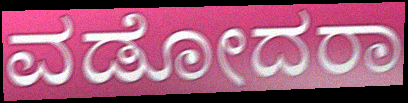
ವಡೋದರಾ